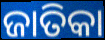
ଜାତିକା